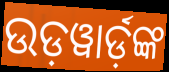
ଉଡ଼ୱାର୍ଡ଼ଙ୍କ